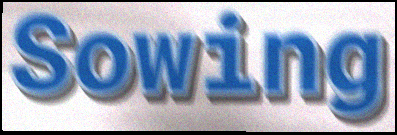
Sowing